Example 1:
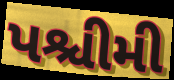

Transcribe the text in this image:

પશ્ચીમી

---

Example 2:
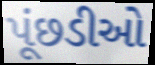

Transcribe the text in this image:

પૂંછડીઓ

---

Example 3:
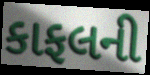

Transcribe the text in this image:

કાફલની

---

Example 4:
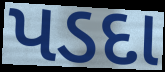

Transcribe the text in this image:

પડદા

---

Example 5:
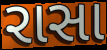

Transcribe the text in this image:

રાસા